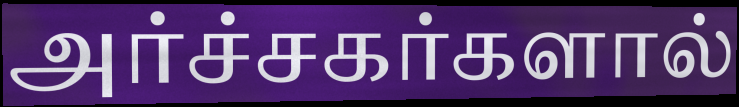
அர்ச்சகர்களால்